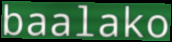
baalako